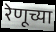
रेणूच्या